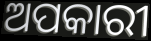
ଅପକାରୀ